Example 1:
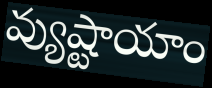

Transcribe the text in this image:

వ్యుష్టాయాం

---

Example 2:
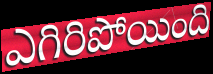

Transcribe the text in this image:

ఎగిరిపోయింది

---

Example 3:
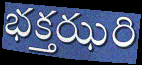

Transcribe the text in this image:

భక్తఝరి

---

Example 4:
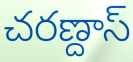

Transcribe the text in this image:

చరణ్దాస్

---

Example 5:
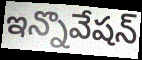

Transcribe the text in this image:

ఇన్నొవేషన్